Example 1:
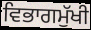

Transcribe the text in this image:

ਵਿਭਾਗਮੁੱਖੀ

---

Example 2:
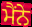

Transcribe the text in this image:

ਮੈਂਨੇ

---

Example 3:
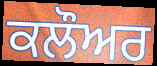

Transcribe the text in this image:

ਕਲੌਅਰ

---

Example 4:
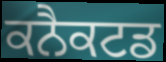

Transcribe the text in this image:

ਕਨੈਕਟਡ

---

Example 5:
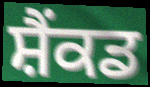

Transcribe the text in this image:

ਸ਼ੈਂਕਡ